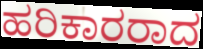
ಹರಿಕಾರರಾದ